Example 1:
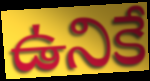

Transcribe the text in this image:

ఉనికే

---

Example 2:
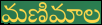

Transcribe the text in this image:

మణిమాల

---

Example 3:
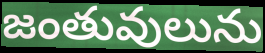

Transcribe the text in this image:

జంతువులును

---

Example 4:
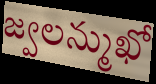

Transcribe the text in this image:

జ్వలన్ముఖో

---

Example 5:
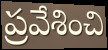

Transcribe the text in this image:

ప్రవేశించి